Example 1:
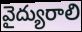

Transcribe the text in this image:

వైద్యురాలి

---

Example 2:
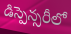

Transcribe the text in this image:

డిస్పెన్సరీలో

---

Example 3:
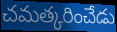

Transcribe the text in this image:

చమత్కరించేడు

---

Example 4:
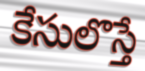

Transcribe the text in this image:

కేసులొస్తే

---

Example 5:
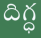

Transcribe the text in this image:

దిగ్ధ